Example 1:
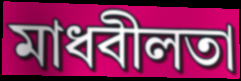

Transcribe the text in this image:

মাধবীলতা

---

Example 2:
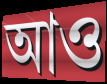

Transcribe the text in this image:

আও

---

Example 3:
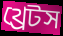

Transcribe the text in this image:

থ্রেটস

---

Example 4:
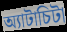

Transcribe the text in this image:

অ্যাটাচিটা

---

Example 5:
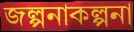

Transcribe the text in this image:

জল্পনাকল্পনা